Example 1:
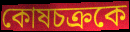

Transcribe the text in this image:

কোষচক্রকে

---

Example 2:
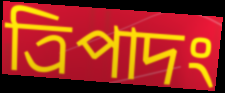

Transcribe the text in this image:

ত্রিপাদং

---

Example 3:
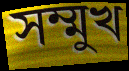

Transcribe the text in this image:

সম্মুখ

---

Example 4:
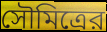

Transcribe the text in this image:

সৌমিত্রের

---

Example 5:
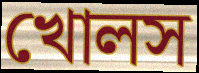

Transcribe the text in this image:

খোলস